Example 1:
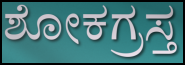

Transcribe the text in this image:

ಶೋಕಗ್ರಸ್ತ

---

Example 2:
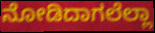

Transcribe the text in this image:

ನೋಡಿದಾಗಲೆಲ್ಲಾ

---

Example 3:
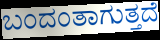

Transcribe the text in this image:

ಬಂದಂತಾಗುತ್ತದೆ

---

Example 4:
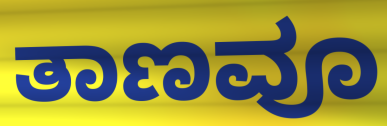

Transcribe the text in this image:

ತಾಣವೂ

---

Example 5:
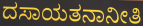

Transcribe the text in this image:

ದಸಾಯತನಾನೀತಿ